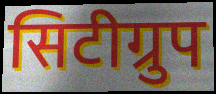
सिटीग्रुप